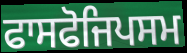
ਫਾਸਫੋਜਿਪਸਮ